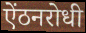
ऐंठनरोधी